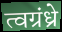
त्वग्रंध्रे